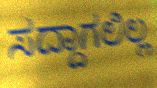
ಸದ್ದಾಗಲಿಲ್ಲ